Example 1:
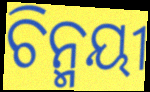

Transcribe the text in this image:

ଚିନ୍ମୟୀ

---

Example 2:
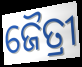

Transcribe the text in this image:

ଜୈତ୍ରୀ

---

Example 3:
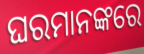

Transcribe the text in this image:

ଘରମାନଙ୍କରେ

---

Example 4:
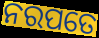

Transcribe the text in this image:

ନରପତେ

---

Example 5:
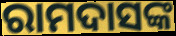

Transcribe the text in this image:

ରାମଦାସଙ୍କ